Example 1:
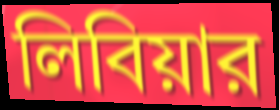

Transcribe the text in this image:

লিবিয়ার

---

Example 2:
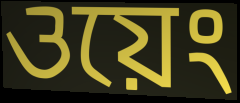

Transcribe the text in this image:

ওয়েং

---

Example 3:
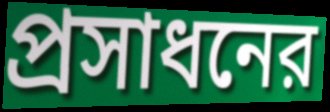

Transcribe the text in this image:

প্রসাধনের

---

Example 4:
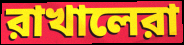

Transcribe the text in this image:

রাখালেরা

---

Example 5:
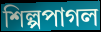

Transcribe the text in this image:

শিল্পপাগল